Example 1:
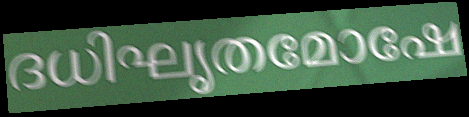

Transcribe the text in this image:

ദധിഘൃതമോഷേ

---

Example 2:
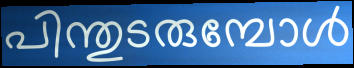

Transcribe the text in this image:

പിന്തുടരുമ്പോൾ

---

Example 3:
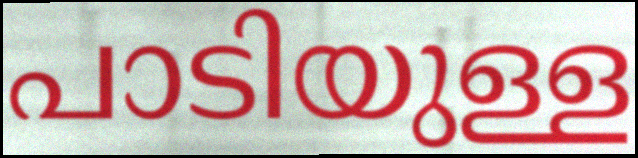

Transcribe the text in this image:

പാടിയുള്ള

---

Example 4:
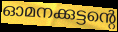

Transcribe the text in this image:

ഓമനക്കുട്ടന്റെ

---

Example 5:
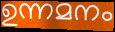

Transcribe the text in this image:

ഉന്നമനം